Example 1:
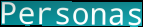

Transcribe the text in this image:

Personas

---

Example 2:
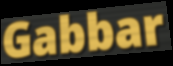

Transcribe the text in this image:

Gabbar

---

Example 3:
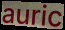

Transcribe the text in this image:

auric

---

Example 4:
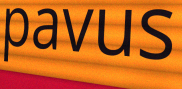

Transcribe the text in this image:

pavus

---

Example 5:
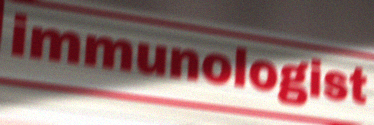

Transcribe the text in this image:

immunologist